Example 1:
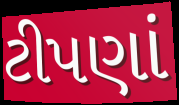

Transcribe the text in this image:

ટીપણાં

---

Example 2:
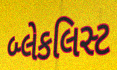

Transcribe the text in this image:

બ્લેકલિસ્ટ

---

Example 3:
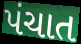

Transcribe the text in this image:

પંચાત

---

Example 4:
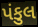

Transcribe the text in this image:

પંકુલ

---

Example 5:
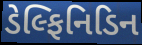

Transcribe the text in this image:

ડેલ્ફિનિડિન